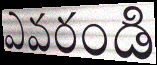
ఎవరండి